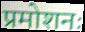
प्रमोशनः